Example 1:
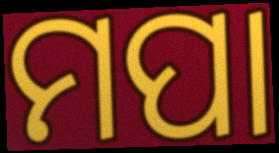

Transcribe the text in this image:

ମପା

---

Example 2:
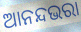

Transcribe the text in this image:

ଆନନ୍ଦଭରା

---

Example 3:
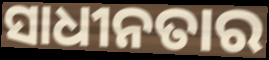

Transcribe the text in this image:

ସାଧୀନତାର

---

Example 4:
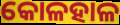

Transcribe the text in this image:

କୋଳହାଳ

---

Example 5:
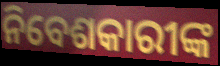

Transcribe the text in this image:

ନିବେଶକାରୀଙ୍କ